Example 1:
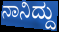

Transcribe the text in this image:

ನಾನಿದ್ದು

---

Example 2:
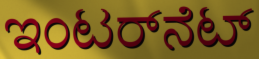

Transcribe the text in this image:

ಇಂಟರ್‌ನೆಟ್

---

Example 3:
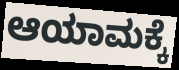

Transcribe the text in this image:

ಆಯಾಮಕ್ಕೆ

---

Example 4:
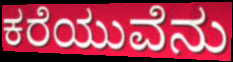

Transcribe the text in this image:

ಕರೆಯುವೆನು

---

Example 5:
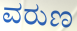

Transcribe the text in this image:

ವರುಣ